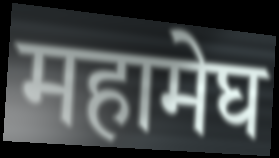
महामेघ